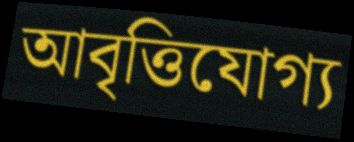
আবৃত্তিযোগ্য